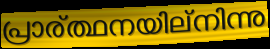
പ്രാര്ത്ഥനയില്നിന്നു